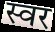
स्‍वर